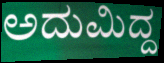
ಅದುಮಿದ್ದ